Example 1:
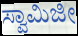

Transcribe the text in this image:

ಸ್ವಾಮಿಜೀ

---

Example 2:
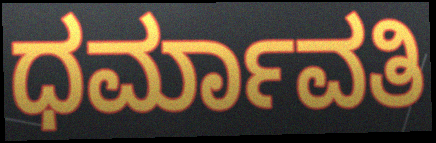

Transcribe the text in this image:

ಧರ್ಮಾವತಿ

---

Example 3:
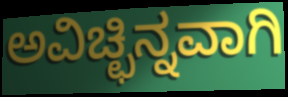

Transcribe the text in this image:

ಅವಿಚ್ಛಿನ್ನವಾಗಿ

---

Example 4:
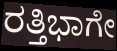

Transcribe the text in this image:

ರತ್ತಿಭಾಗೇ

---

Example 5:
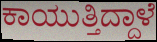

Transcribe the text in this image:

ಕಾಯುತ್ತಿದ್ದಾಳೆ